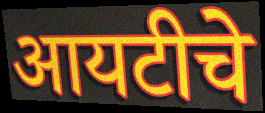
आयटीचे